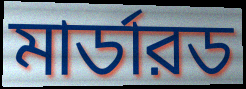
মার্ডারড